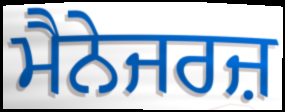
ਮੈਨੇਜਰਜ਼